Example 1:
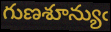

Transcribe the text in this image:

గుణశూన్యుఁ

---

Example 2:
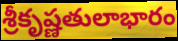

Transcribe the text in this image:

శ్రీకృష్ణతులాభారం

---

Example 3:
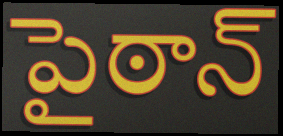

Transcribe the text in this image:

పైఠాన్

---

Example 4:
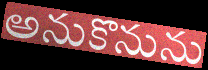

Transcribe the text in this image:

అనుకొనును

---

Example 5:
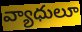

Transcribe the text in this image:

వ్యాధులూ